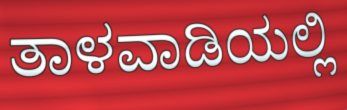
ತಾಳವಾಡಿಯಲ್ಲಿ